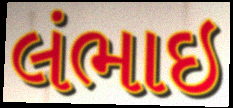
લંભાઇ